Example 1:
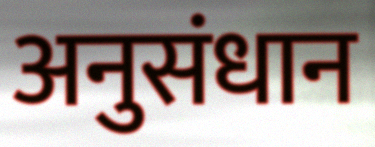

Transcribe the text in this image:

अनुसंधान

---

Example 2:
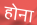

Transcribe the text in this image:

होना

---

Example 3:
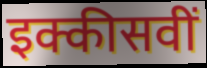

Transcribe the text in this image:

इक्कीसवीं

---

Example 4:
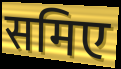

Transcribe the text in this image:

समिए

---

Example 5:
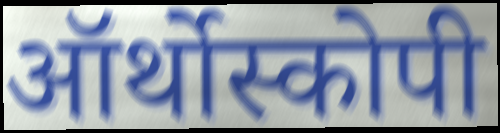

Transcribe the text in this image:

ऑर्थोस्कोपी